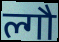
ल्गौ